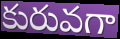
కురువగా